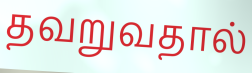
தவறுவதால்